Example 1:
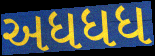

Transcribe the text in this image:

અધધધ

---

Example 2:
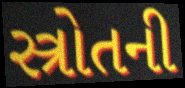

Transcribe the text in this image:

સ્ત્રોતની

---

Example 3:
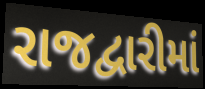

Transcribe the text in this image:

રાજદ્વારીમાં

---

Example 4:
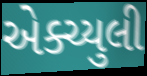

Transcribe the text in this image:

એક્ચ્યુલી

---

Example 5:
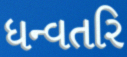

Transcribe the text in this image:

ધન્વતરિ